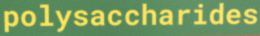
polysaccharides